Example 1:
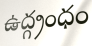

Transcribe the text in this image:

ఉద్గ్రంధం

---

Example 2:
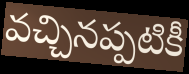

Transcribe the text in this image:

వచ్చినప్పటికీ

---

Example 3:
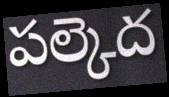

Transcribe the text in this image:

పల్కెద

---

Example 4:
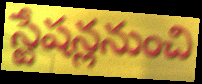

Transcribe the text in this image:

స్టేషన్లనుంచి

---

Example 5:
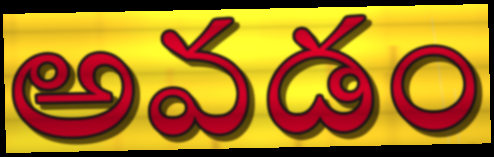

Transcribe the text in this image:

అవడం